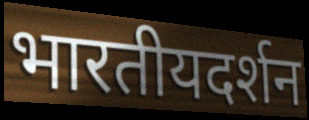
भारतीयदर्शन